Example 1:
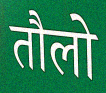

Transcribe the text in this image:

तौलो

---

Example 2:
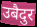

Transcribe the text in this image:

उबैदुर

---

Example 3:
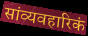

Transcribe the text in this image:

सांव्यवहारिकं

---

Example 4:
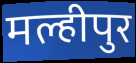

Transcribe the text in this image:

मल्हीपुर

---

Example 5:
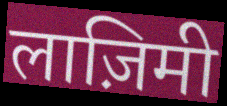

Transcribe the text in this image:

लाज़िमी